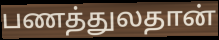
பணத்துலதான்